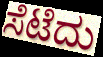
ಸೆಟೆದು